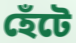
হেঁটে